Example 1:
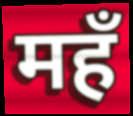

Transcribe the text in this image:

महँ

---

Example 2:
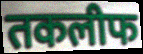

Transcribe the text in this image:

तकलीफ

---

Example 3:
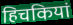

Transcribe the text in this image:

हिचकियां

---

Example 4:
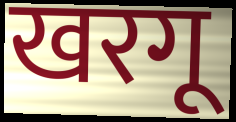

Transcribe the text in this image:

खरगू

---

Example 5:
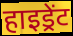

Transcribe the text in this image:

हाइड्रेंट